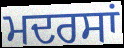
ਮਦਰਸਾਂ